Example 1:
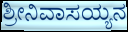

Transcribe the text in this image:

ಶ್ರೀನಿವಾಸಯ್ಯನ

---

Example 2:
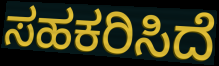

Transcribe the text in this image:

ಸಹಕರಿಸಿದೆ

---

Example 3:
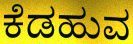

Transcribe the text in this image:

ಕೆಡಹುವ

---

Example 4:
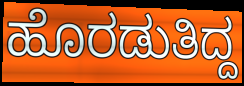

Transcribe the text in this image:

ಹೊರಡುತಿದ್ದ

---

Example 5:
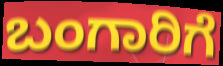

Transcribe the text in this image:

ಬಂಗಾರಿಗೆ